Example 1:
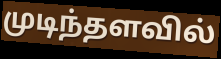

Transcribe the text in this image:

முடிந்தளவில்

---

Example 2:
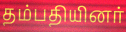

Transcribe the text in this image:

தம்பதியினர்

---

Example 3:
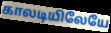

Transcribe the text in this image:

காலடியிலேயே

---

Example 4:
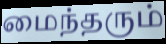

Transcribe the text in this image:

மைந்தரும்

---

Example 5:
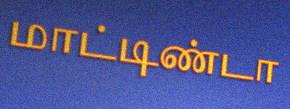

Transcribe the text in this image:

மாட்டிண்டா